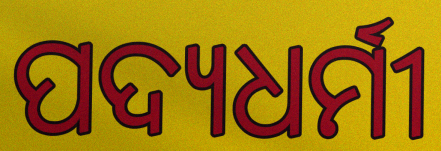
ପଦ୍ୟଧର୍ମୀ